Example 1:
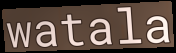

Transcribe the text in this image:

watala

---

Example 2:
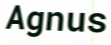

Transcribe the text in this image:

Agnus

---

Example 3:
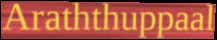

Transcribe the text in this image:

Araththuppaal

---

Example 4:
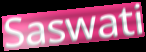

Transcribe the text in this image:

Saswati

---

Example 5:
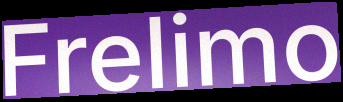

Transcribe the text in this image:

Frelimo